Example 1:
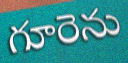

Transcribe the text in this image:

గూరెను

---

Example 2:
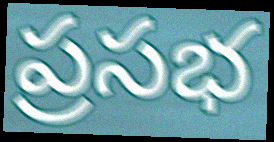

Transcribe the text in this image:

ప్రసభ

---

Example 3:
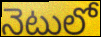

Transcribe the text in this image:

నెటులో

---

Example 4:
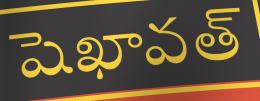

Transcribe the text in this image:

షెఖావత్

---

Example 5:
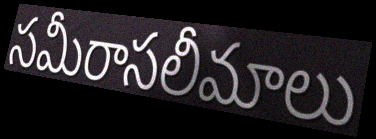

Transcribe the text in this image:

సమీరాసలీమాలు